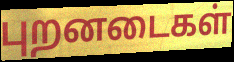
புறனடைகள்